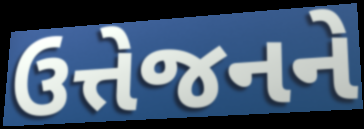
ઉત્તેજનને